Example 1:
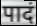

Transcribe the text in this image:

पादं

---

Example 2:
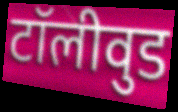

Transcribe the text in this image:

टॉलीवुड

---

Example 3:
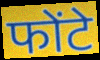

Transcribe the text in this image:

फोंटे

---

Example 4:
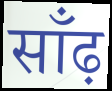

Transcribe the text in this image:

साँढ़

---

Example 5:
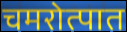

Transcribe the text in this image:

चमरोत्पात